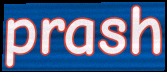
prash